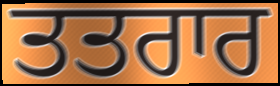
ਤਤਰਾਰ